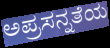
ಅಪ್ರಸನ್ನತೆಯ